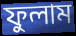
ফুলাম